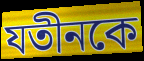
যতীনকে